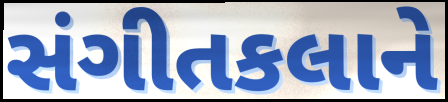
સંગીતકલાને